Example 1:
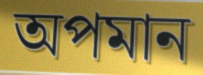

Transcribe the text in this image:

অপমান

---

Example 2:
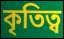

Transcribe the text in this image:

কৃতিত্ব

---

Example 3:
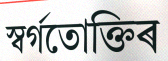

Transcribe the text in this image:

স্বৰ্গতোক্তিৰ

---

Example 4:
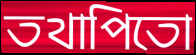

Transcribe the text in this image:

তথাপিতো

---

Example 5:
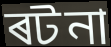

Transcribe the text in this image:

ৰটনা